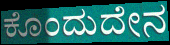
ಕೊಂದುದೇನ